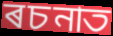
ৰচনাত